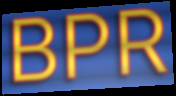
BPR